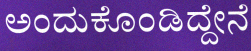
ಅಂದುಕೊಂಡಿದ್ದೇನೆ